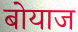
बोयाज